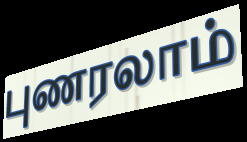
புணரலாம்